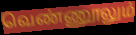
வெண்ணூலும்